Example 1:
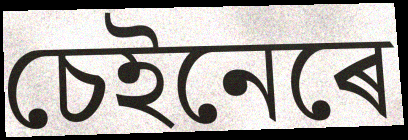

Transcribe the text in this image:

চেইনেৰে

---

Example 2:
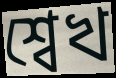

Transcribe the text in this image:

শ্বেখ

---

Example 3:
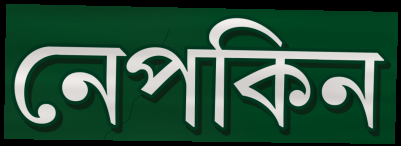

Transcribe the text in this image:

নেপকিন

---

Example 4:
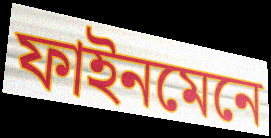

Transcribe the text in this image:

ফাইনমেনে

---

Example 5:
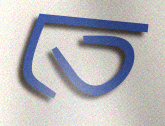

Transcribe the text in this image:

তে